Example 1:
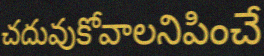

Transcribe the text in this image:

చదువుకోవాలనిపించే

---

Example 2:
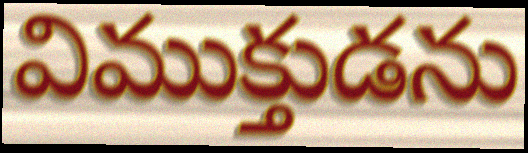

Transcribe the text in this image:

విముక్తుడను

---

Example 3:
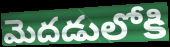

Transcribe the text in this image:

మెదడులోకి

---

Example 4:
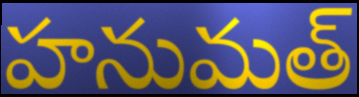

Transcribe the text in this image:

హనుమత్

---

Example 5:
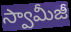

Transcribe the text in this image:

స్వామీజీ